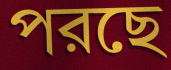
পরছে